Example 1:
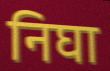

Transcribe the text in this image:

निघा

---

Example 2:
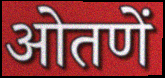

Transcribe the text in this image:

ओतणें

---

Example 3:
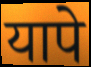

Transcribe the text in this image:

यापे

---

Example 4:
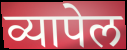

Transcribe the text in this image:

व्यापेल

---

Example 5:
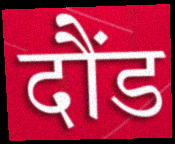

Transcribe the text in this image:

दौंड